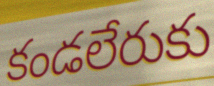
కండలేరుకు